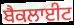
ਬੈਕਲਾਈਟ